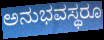
ಅನುಭವಸ್ಥರೂ